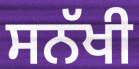
ਸਨੱਖੀ